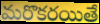
మరొకరయితే